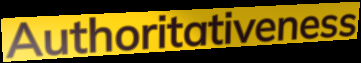
Authoritativeness